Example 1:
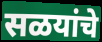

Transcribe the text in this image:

सळयांचे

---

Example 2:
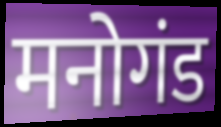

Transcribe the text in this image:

मनोगंड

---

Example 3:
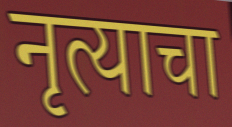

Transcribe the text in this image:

नृत्याचा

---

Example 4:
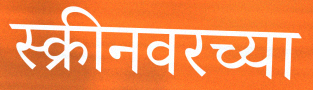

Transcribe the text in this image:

स्क्रीनवरच्या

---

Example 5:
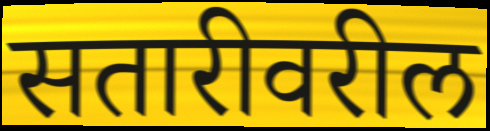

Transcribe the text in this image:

सतारीवरील